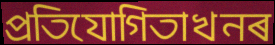
প্ৰতিযোগিতাখনৰ